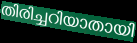
തിരിച്ചറിയാതായി